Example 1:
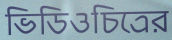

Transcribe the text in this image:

ভিডিওচিত্রের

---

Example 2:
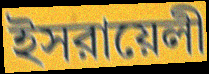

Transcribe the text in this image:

ইসরায়েলী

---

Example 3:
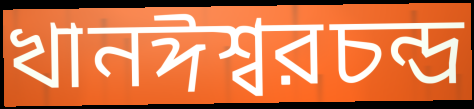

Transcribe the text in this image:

খানঈশ্বরচন্দ্র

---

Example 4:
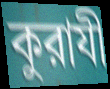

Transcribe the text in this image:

কুরাযী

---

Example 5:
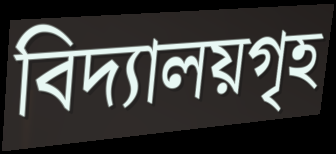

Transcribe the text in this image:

বিদ্যালয়গৃহ